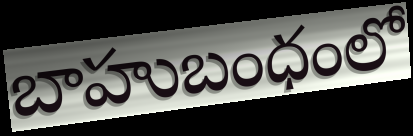
బాహుబంధంలో